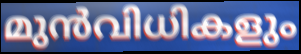
മുൻവിധികളും